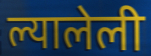
ल्यालेली